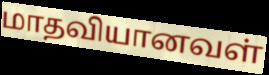
மாதவியானவள்